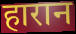
हारान